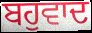
ਬਹੁਵਾਦ